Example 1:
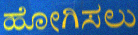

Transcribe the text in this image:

ಹೋಗಿಸಲು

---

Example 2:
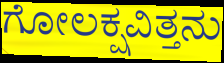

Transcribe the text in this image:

ಗೋಲಕ್ಷವಿತ್ತನು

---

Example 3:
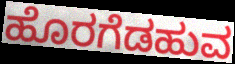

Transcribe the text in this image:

ಹೊರಗೆಡಹುವ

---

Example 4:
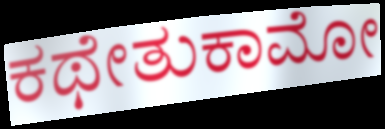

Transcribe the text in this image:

ಕಥೇತುಕಾಮೋ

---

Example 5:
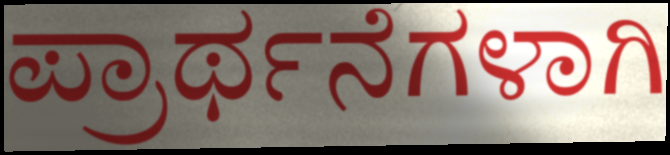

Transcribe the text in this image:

ಪ್ರಾರ್ಥನೆಗಳಾಗಿ